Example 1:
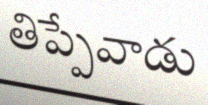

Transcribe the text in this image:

తిప్పేవాడు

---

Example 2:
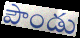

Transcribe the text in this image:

పౌండు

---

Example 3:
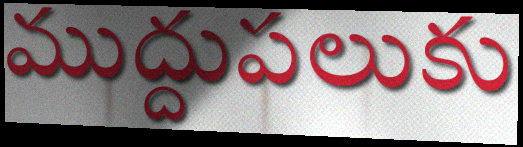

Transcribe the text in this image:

ముద్దుపలుకు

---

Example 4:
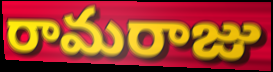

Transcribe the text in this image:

రామరాజు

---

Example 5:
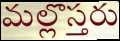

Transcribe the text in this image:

మల్లొస్తరు